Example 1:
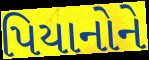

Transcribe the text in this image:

પિયાનોને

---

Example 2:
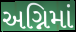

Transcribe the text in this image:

અગ્નિમાં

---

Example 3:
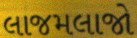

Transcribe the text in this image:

લાજમલાજો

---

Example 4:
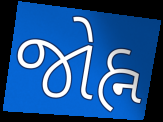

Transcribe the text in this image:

જોહ્ન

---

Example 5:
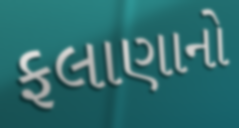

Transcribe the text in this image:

ફલાણાનો